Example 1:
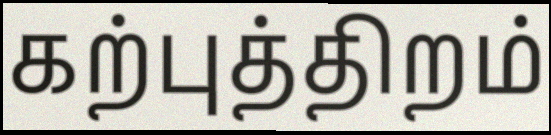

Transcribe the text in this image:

கற்புத்திறம்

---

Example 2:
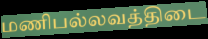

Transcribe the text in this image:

மணிபல்லவத்திடை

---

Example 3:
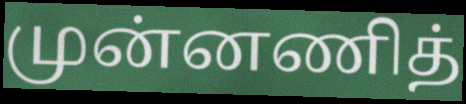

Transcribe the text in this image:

முன்னணித்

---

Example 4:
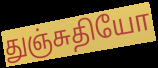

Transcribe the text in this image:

துஞ்சுதியோ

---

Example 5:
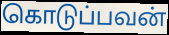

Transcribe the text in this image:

கொடுப்பவன்